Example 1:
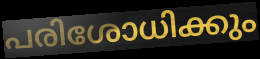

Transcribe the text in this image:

പരിശോധിക്കും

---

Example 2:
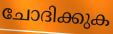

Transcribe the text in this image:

ചോദിക്കുക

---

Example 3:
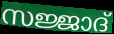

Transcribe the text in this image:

സജ്ജാദ്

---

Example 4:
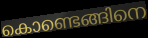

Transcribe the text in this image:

കൊണ്ടെങ്ങിനെ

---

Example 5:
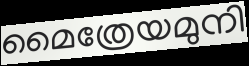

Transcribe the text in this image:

മൈത്രേയമുനി